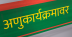
अणुकार्यक्रमावर